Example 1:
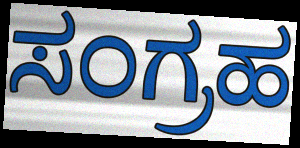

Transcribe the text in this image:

ಸಂಗ್ರಹ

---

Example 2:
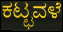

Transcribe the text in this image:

ಕಟ್ಟವಳೆ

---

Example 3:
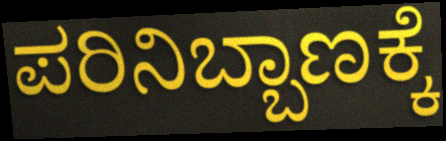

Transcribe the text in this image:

ಪರಿನಿಬ್ಬಾಣಕ್ಕೆ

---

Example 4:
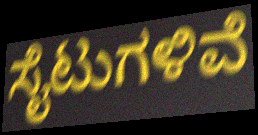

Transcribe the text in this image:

ಸೈಟುಗಳಿವೆ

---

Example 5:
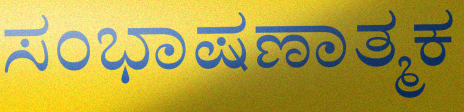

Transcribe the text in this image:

ಸಂಭಾಷಣಾತ್ಮಕ